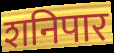
शनिपार